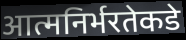
आत्मनिर्भरतेकडे